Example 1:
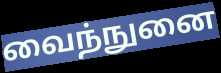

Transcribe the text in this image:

வைந்நுனை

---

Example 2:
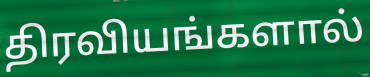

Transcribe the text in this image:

திரவியங்களால்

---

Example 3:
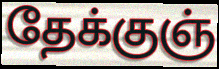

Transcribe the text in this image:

தேக்குஞ்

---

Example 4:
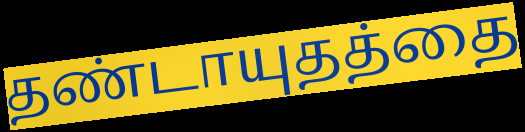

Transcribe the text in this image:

தண்டாயுதத்தை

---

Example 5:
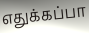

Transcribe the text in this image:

எதுக்கப்பா